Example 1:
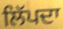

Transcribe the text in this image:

ਲਿੱਪਦਾ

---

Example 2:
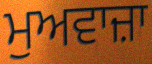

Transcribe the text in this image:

ਮੁਅਵਾਜ਼ਾ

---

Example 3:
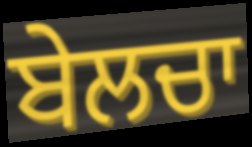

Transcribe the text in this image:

ਬੇਲਚਾ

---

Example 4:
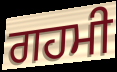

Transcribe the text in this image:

ਗਹਮੀ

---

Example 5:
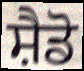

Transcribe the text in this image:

ਸ਼ੈਡੋ